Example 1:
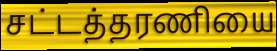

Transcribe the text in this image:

சட்டத்தரணியை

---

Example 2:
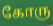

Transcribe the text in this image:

கோரு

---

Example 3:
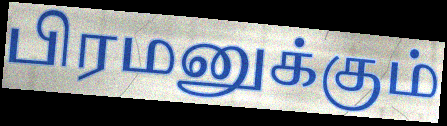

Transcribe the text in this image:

பிரமனுக்கும்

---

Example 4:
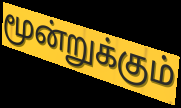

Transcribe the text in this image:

மூன்றுக்கும்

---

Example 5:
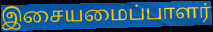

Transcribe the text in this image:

இசையமைப்பாளர்